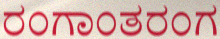
ರಂಗಾಂತರಂಗ